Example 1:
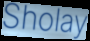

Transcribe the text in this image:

Sholay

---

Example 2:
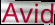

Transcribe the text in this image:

Avid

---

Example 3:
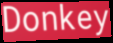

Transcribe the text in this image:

Donkey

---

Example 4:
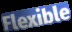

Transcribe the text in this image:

Flexible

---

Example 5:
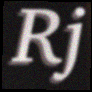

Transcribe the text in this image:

Rj